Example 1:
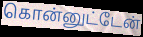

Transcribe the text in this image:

கொன்னுட்டேன்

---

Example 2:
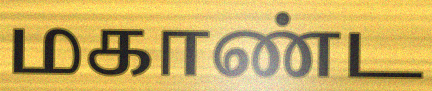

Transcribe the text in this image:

மகாண்ட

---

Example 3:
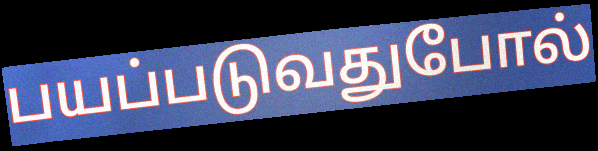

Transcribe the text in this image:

பயப்படுவதுபோல்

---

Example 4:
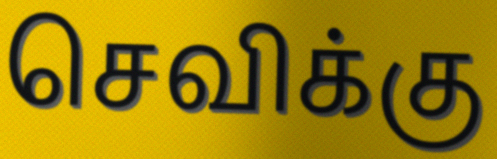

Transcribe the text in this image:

செவிக்கு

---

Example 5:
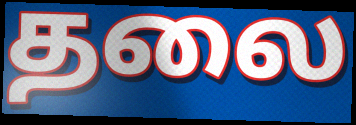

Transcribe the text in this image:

தலை